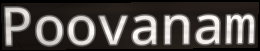
Poovanam